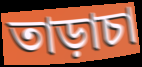
তাড়াচা